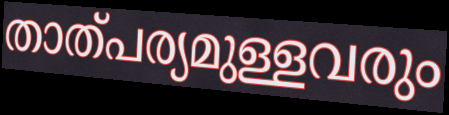
താത്പര്യമുള്ളവരും